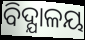
ବିଦ୍ଯାଳୟ